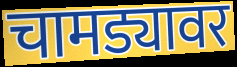
चामड्यावर